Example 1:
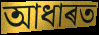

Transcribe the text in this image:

আধাৰত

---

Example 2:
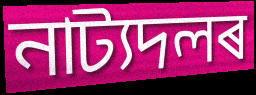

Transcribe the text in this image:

নাট্যদলৰ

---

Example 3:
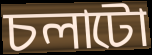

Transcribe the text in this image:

চলাটো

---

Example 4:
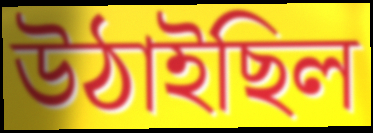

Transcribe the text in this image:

উঠাইছিল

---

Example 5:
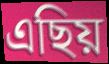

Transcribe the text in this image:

এছিয়